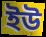
ইউ